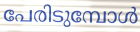
പേരിടുമ്പോൾ